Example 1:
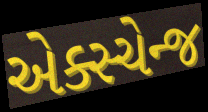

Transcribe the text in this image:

એક્સ્ચેન્જ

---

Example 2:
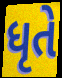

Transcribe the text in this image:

ધૃતે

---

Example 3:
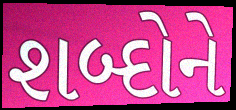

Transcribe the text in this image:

શબ્દોને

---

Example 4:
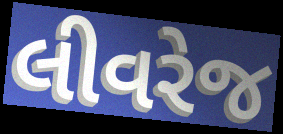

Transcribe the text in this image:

લીવરેજ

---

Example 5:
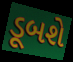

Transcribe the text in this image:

ડૂબશે